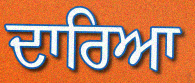
ਦਾਰਿਆ